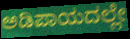
ಅಡಿಪಾಯದಲ್ಲೇ